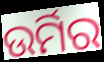
ଉର୍ମିର